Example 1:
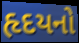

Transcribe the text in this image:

હૃદયનો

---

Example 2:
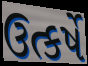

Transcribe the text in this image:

ઉત્કર્ષે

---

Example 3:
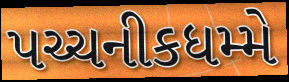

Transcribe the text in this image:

પચ્ચનીકધમ્મે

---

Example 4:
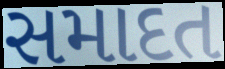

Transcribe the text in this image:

સમાદત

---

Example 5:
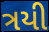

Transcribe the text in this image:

ત્રયી